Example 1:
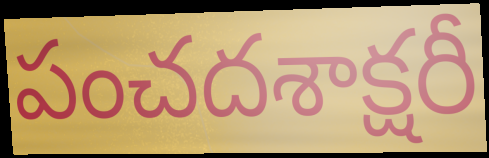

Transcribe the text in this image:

పంచదశాక్షరీ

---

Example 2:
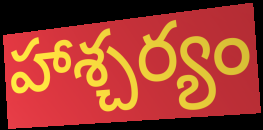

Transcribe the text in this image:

హాశ్చర్యం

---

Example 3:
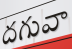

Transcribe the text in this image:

దగువా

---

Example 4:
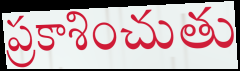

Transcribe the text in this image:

ప్రకాశించుతు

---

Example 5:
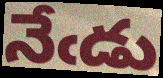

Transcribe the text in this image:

నేఁడు